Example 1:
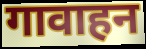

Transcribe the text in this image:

गावाहन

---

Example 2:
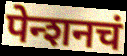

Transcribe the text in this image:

पेन्शनचं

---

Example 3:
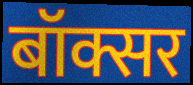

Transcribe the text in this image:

बॉक्सर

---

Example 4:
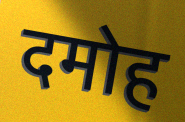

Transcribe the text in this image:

दमोह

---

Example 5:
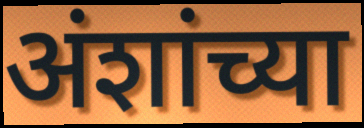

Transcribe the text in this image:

अंशांच्या